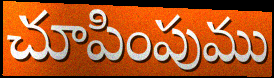
చూపింపుము